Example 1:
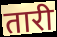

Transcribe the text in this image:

तारी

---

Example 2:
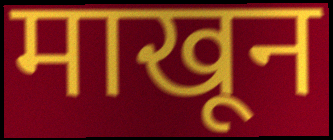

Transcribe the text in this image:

माखून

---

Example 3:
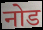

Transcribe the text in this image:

नोड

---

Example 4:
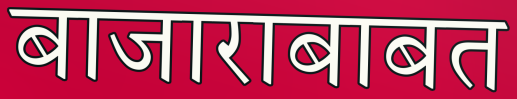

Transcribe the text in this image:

बाजाराबाबत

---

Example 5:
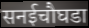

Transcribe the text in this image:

सनईचौघडा